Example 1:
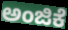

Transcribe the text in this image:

ಅಂಜಿಕೆ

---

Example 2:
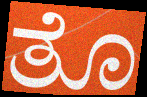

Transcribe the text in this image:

ತೊ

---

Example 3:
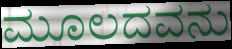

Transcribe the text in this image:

ಮೂಲದವನು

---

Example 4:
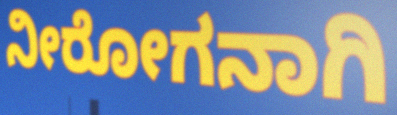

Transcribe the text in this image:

ನೀರೋಗನಾಗಿ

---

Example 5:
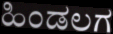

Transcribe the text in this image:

ಹಿಂಡಲಗ